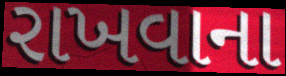
રાખવાના